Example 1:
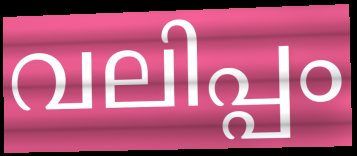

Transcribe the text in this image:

വലിപ്പം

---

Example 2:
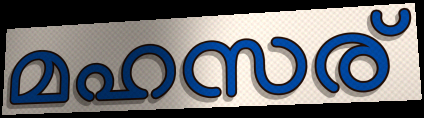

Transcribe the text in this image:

മഹസര്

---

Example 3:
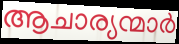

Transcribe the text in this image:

ആചാര്യന്മാർ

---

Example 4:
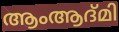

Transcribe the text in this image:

ആംആദ്മി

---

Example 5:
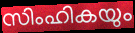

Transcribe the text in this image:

സിംഹികയും